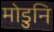
मोडुनि